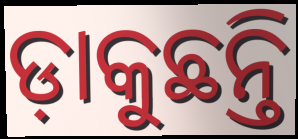
ଡ଼ାକୁଛନ୍ତି